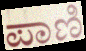
ಪಾಣಿ